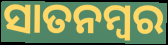
ସାତନମ୍ବର